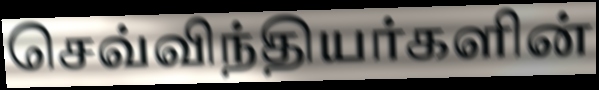
செவ்விந்தியர்களின்